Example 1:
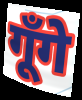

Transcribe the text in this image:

गूँगे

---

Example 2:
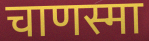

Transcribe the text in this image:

चाणस्मा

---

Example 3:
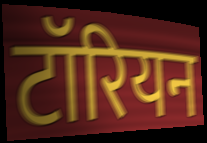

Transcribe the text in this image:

टॉरियन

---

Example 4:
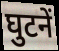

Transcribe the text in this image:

घुटनें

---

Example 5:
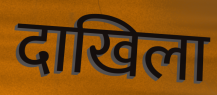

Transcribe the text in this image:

दाखिला